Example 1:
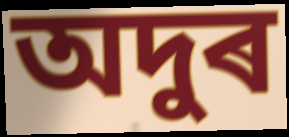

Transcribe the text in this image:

অদুৰ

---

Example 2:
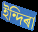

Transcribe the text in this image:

ইন্দিৰা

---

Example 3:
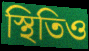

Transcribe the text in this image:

স্থিতিও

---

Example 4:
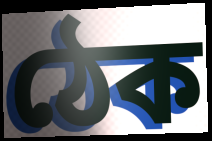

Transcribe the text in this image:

ঠেক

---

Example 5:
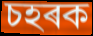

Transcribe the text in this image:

চহৰক